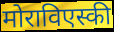
मोराविएस्की